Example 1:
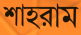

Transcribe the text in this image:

শাহরাম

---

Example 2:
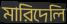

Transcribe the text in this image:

মারিদেলি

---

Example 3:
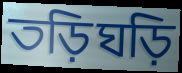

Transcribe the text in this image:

তড়িঘড়ি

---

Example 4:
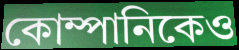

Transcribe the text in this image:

কোম্পানিকেও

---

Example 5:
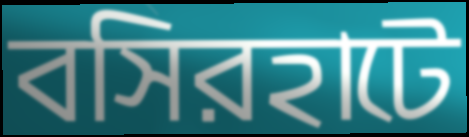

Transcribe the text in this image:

বসিরহাটে